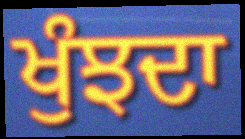
ਖੁੰਝਦਾ